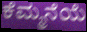
ಕೆಮ್ಮನೆಯೆ